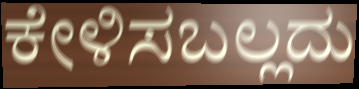
ಕೇಳಿಸಬಲ್ಲದು